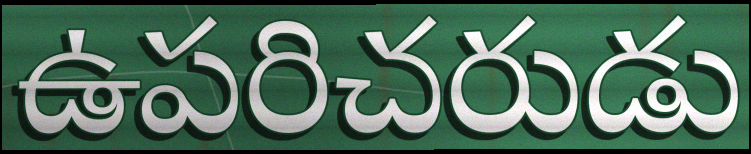
ఉపరిచరుడు